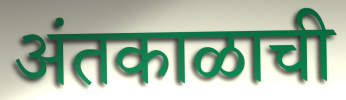
अंतकाळाची